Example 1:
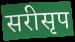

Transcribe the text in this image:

सरीसृप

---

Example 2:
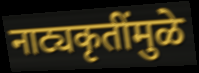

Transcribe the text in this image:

नाट्यकृतींमुळे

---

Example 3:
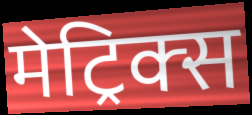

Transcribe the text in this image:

मेट्रिक्‍स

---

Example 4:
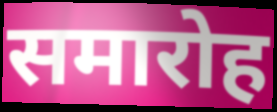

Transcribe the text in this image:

समारोह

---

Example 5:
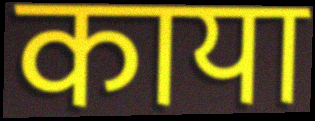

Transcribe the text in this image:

काया